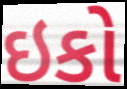
ઇકો